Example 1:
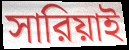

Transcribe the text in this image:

সারিয়াই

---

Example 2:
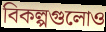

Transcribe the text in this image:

বিকল্পগুলোও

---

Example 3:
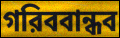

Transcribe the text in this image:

গরিববান্ধব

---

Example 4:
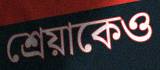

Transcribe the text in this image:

শ্রেয়াকেও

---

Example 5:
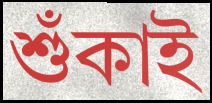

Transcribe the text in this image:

শুঁকাই